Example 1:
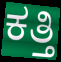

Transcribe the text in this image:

ಕತ್ತಿ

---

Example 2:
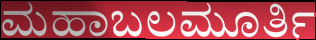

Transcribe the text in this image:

ಮಹಾಬಲಮೂರ್ತಿ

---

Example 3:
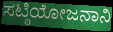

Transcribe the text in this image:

ಸಟ್ಠಿಯೋಜನಾನಿ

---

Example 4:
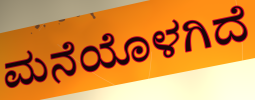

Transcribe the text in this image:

ಮನೆಯೊಳಗಿದೆ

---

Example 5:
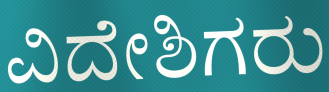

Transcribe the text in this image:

ವಿದೇಶಿಗರು